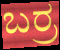
ಬರ್ರ